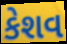
કેશવ